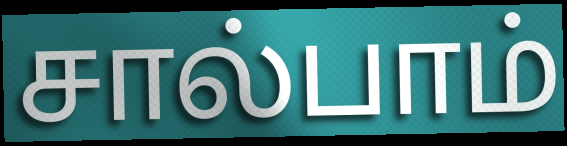
சால்பாம்